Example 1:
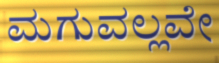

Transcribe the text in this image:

ಮಗುವಲ್ಲವೇ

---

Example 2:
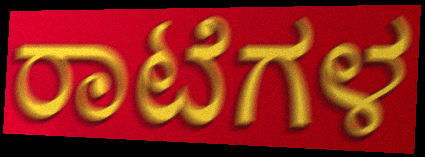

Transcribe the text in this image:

ರಾಟೆಗಳ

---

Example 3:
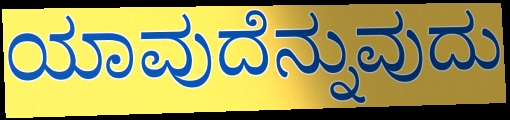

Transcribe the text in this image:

ಯಾವುದೆನ್ನುವುದು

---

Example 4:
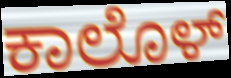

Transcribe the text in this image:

ಕಾಲೊಳ್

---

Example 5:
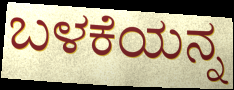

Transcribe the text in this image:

ಬಳಕೆಯನ್ನ